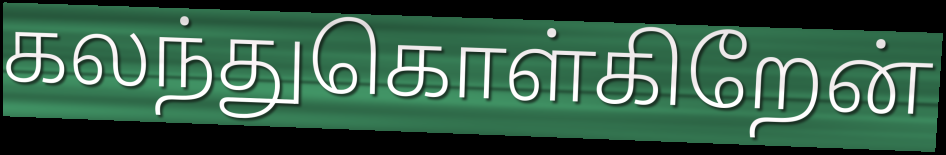
கலந்துகொள்கிறேன்